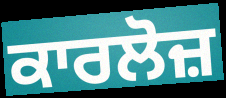
ਕਾਰਲੋਜ਼